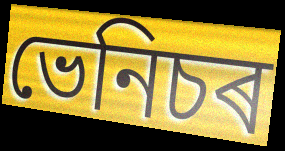
ভেনিচৰ